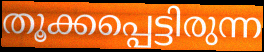
തൂക്കപ്പെട്ടിരുന്ന